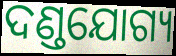
ଦଣ୍ଡଯୋଗ୍ୟ